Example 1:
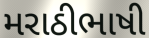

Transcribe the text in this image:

મરાઠીભાષી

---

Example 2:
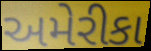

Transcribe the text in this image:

અમેરીકા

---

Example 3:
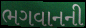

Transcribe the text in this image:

ભગવાનની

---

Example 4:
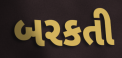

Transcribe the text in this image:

બરકતી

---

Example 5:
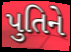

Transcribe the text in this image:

પુતિને